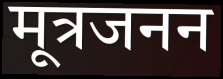
मूत्रजनन